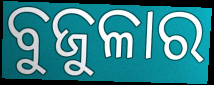
ବୁଜୁଳାର